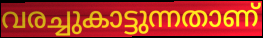
വരച്ചുകാട്ടുന്നതാണ്